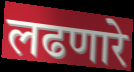
लढणारे